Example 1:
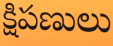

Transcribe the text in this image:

క్షిపణులు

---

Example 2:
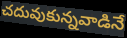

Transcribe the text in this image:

చదువుకున్నవాడినే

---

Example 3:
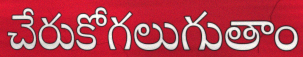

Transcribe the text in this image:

చేరుకోగలుగుతాం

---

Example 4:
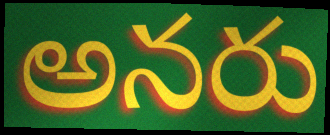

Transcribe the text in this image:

అనరు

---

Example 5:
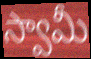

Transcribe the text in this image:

స్వామీ